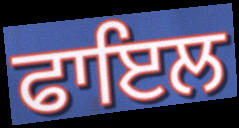
ਫਾਇਲ